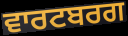
ਵਾਰਟਬਰਗ